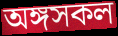
অঙ্গসকল